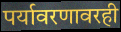
पर्यावरणावरही